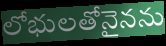
లోభులతోనైనను